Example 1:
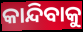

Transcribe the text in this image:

କାନ୍ଦିବାକୁ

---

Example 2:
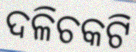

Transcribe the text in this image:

ଦଳିଚକଟି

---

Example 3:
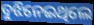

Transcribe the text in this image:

ବୁଝିନେଇଥିଲେ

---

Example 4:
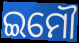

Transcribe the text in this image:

ଇମୌ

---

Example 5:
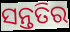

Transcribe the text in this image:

ସନ୍ତତିର